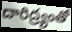
దారిద్ర్యంతో